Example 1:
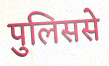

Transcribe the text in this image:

पुलिससे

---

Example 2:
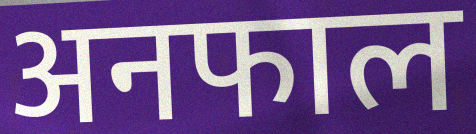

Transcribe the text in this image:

अनफाल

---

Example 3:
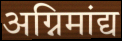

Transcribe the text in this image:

अग्निमांद्य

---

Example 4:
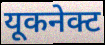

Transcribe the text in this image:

यूकनेक्ट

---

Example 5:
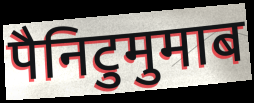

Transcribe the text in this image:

पैनिटुमुमाब